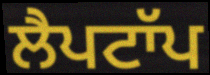
ਲੈਪਟਾੱਪ